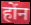
होंन